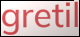
gretil